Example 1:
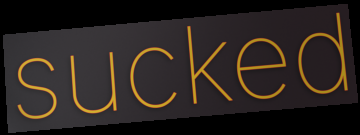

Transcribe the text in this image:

sucked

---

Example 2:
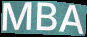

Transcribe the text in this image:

MBA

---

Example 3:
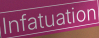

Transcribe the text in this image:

Infatuation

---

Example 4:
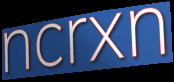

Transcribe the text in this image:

ncrxn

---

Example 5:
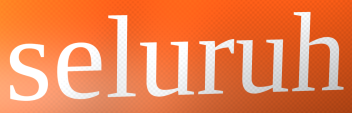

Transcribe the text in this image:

seluruh